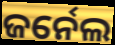
ଜର୍ନେଲ